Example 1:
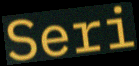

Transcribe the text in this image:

Seri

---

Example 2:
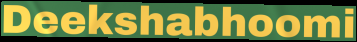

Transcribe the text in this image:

Deekshabhoomi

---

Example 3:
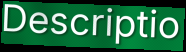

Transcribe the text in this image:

Descriptio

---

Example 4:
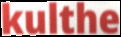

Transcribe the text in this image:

kulthe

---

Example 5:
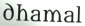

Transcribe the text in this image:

dhamal